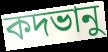
কদভানু